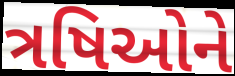
ત્રષિઓને